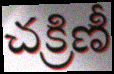
చక్రిణీ